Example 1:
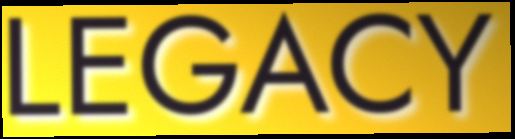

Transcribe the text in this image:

LEGACY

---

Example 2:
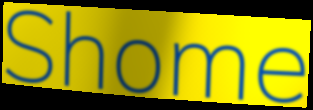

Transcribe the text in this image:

Shome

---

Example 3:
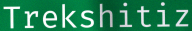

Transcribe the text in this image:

Trekshitiz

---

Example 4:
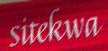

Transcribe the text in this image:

sitekwa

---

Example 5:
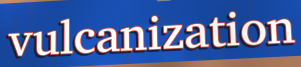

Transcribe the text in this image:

vulcanization